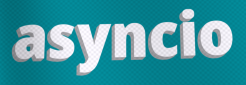
asyncio